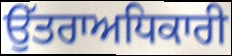
ਉੱਤਰਾਅਧਿਕਾਰੀ